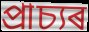
প্ৰাচ্যৰ